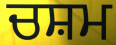
ਚਸ਼ਮ